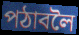
পঠাবলৈ